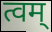
त्वम्